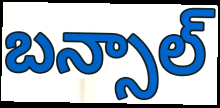
బన్సాల్